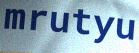
mrutyu